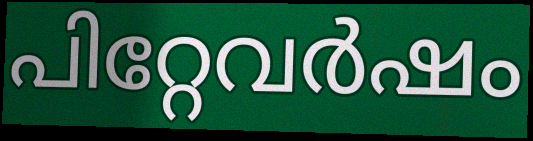
പിറ്റേവർഷം